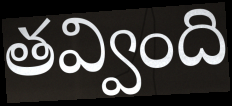
తవ్వింది